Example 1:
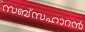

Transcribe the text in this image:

സബ്സഹാറൻ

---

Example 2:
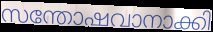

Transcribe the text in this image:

സന്തോഷവാനാക്കി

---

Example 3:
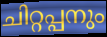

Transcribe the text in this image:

ചിറ്റപ്പനും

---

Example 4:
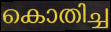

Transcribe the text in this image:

കൊതിച്ച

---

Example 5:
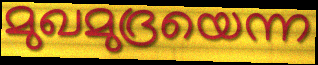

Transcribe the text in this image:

മുഖമുദ്രയെന്ന